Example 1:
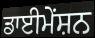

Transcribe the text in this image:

ਡਾਈਮੇਂਸ਼ਨ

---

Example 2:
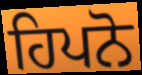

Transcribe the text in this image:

ਹਿਪਨੋ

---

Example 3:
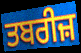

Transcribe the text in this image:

ਤਬਰੀਜ਼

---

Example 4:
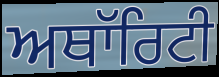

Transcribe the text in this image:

ਅਥਾੱਰਿਟੀ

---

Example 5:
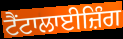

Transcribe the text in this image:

ਟੈਂਟਾਲਾਈਜ਼ਿੰਗ